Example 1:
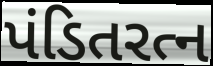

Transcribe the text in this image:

પંડિતરત્ન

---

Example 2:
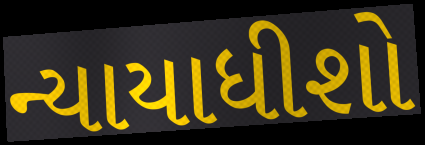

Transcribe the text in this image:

ન્યાયાધીશો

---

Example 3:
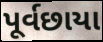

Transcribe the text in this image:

પૂર્વછાયા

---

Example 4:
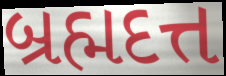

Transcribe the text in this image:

બ્રહ્મદત્ત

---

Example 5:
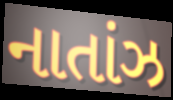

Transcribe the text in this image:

નાતાંઝ